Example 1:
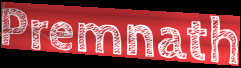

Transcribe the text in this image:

Premnath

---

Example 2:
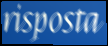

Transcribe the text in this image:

risposta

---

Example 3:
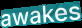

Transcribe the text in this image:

awakes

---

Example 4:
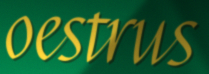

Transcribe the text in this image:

oestrus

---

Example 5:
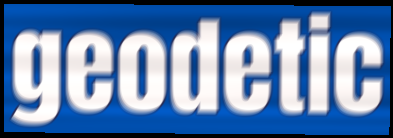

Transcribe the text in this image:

geodetic